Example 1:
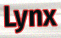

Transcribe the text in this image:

Lynx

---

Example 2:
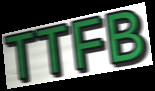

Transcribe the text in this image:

TTFB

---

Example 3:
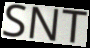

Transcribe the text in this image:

SNT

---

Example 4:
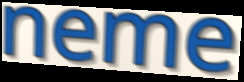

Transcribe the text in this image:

neme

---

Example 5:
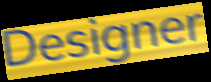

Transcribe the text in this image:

Designer